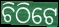
ଚିଠିଟେ